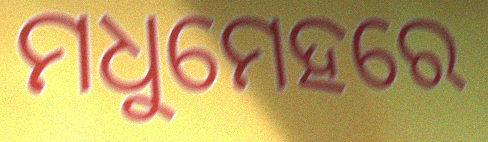
ମଧୁମେହରେ